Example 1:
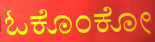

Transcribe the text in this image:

ಓಕೊಂಕೋ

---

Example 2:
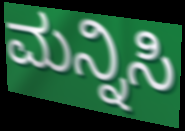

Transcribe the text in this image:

ಮನ್ನಿಸಿ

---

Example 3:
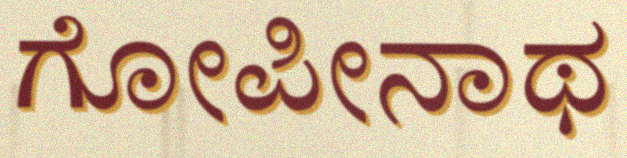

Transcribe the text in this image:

ಗೋಪೀನಾಥ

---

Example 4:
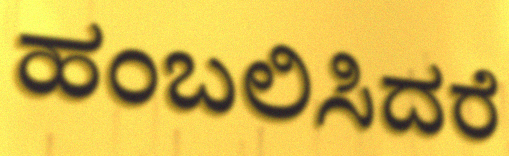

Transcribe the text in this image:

ಹಂಬಲಿಸಿದರೆ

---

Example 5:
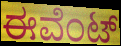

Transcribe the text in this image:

ಈವೆಂಟ್